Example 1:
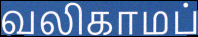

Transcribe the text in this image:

வலிகாமப்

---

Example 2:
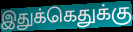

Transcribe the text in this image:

இதுக்கெதுக்கு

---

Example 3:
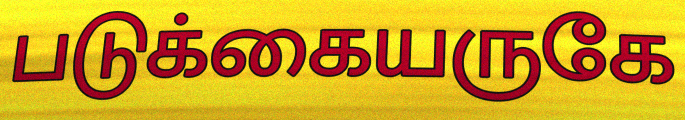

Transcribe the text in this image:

படுக்கையருகே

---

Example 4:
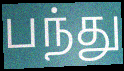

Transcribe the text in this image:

பந்து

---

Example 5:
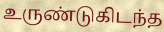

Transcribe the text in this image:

உருண்டுகிடந்த